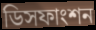
ডিসফাংশন